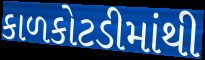
કાળકોટડીમાંથી